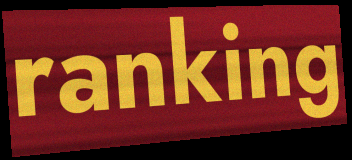
ranking